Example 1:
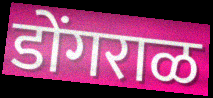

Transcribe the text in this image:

डोंगराळ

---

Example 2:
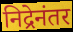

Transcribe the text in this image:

निद्रेनंतर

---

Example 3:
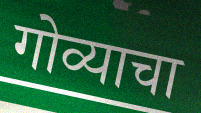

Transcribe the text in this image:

गोव्याचा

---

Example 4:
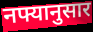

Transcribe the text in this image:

नफ्यानुसार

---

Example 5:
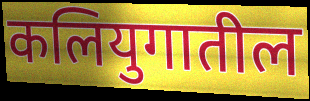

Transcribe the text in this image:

कलियुगातील